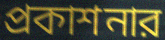
প্রকাশনার